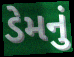
ડેમનું